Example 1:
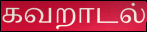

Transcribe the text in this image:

கவறாடல்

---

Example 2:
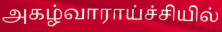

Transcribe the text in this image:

அகழ்வாராய்ச்சியில்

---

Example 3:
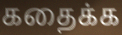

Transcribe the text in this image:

கதைக்க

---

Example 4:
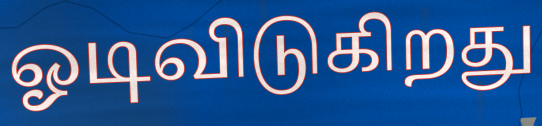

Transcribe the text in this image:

ஓடிவிடுகிறது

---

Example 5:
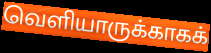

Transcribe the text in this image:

வெளியாருக்காகக்